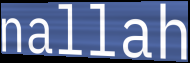
nallah